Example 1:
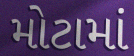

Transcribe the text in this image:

મોટામાં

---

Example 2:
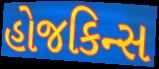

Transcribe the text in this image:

હોજકિન્સ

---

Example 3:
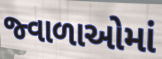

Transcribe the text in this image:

જ્વાળાઓમાં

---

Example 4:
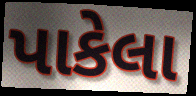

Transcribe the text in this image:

પાકેલા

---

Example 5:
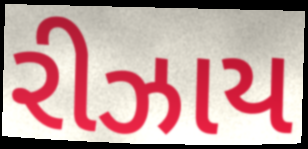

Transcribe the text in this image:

રીઝાય